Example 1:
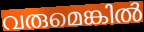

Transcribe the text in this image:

വരുമെങ്കിൽ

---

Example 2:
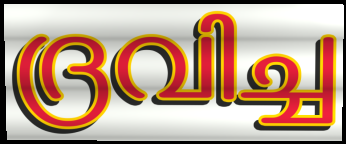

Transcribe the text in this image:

ദ്രവിച്ച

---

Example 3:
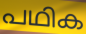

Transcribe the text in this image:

പഥിക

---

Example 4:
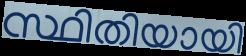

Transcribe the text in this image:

സ്ഥിതിയായി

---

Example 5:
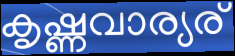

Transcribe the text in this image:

കൃഷ്ണവാര്യര്